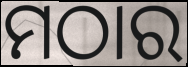
ମଠାର